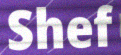
Shef